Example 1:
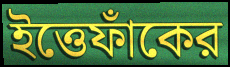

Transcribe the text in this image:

ইত্তেফাঁকের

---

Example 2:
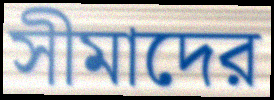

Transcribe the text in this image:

সীমাদের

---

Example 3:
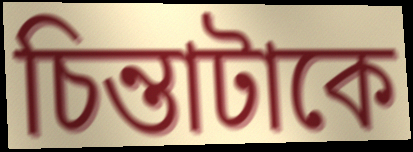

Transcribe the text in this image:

চিন্তাটাকে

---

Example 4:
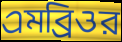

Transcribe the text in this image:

এমব্রিওর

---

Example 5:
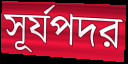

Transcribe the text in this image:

সূর্যপদর